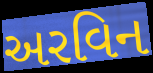
અરવિન